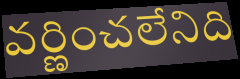
వర్ణించలేనిది